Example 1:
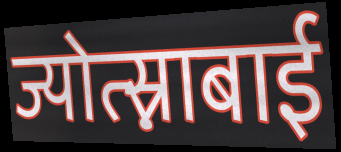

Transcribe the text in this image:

ज्योत्स्नाबाई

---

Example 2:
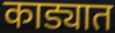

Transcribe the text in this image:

काड्यात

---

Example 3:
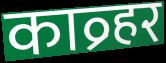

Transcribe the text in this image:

काव्र्हर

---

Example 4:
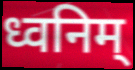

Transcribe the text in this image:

ध्वनिम्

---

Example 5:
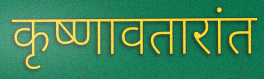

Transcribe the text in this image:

कृष्णावतारांत